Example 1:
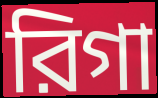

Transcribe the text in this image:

রিগা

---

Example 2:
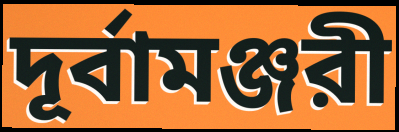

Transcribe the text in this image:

দূর্বামঞ্জরী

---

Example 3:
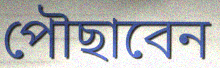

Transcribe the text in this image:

পৌছাবেন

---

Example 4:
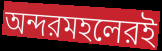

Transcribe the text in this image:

অন্দরমহলেরই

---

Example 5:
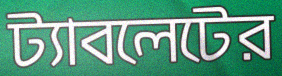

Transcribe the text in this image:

ট্যাবলেটের